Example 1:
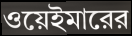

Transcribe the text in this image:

ওয়েইমারের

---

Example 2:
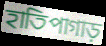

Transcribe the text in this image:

হাতিপাগাড়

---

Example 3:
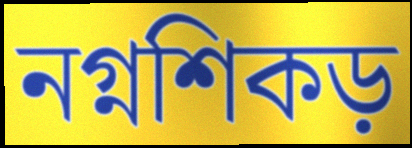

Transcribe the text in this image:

নগ্নশিকড়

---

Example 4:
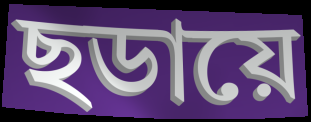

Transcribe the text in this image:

ছডায়ে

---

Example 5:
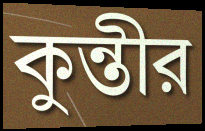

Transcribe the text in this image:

কুন্তীর